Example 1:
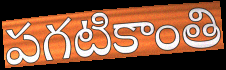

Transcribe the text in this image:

పగటికాంతి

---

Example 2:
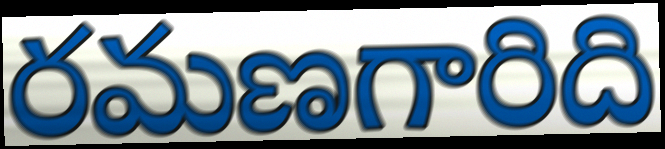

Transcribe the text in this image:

రమణగారిది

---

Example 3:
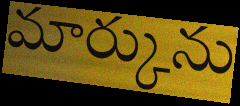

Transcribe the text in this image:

మార్కును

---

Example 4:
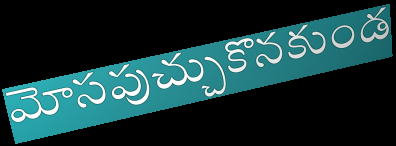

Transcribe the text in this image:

మోసపుచ్చుకొనకుండ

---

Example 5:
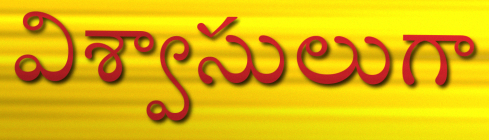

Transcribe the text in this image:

విశ్వాసులుగా